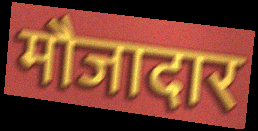
मौजादार